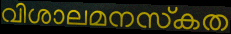
വിശാലമനസ്‌കത